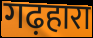
गढ़हारा